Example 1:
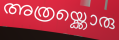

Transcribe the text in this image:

അത്രയ്ക്കൊരു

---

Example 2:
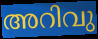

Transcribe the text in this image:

അറിവു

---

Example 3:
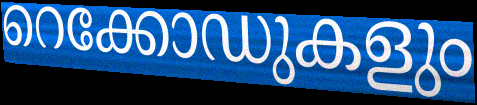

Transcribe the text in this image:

റെക്കോഡുകളും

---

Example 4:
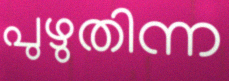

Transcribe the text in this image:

പുഴുതിന്ന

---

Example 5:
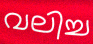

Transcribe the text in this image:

വലിച്ച